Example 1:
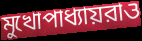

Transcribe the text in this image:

মুখোপাধ্যায়রাও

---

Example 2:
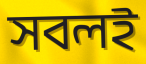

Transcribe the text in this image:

সবলই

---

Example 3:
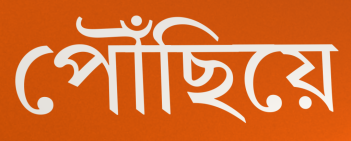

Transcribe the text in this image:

পৌঁছিয়ে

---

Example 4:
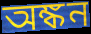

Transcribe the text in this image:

অঙ্কন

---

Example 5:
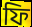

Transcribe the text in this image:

ফি